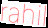
rahil